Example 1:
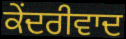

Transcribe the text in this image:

ਕੇਂਦਰੀਵਾਦ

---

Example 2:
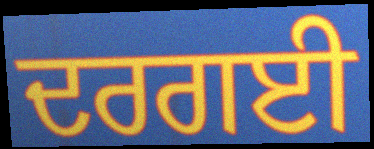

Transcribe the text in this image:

ਦਰਗਈ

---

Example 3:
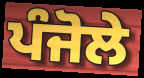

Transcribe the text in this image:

ਪੰਜੋਲੇ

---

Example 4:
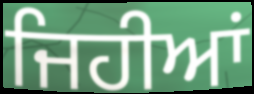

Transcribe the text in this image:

ਜਿਹੀਆਂ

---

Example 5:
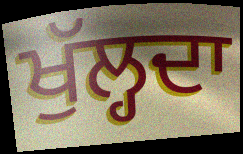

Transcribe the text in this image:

ਖੁੱਲ੍ਹਦਾ